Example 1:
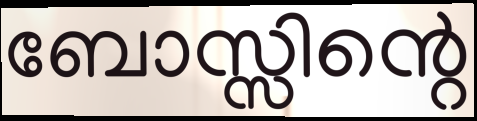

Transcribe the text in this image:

ബോസ്സിന്റെ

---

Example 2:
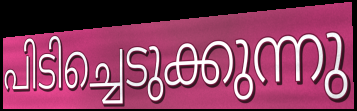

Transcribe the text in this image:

പിടിച്ചെടുക്കുന്നു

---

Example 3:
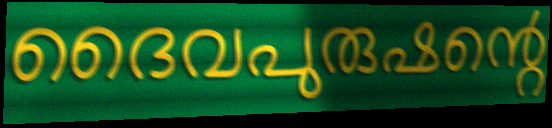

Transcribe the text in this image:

ദൈവപുരുഷന്റെ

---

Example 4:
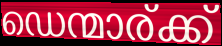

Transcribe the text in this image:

ഡെന്മാര്ക്ക്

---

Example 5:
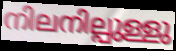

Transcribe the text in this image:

നിലനില്പുള്ളു